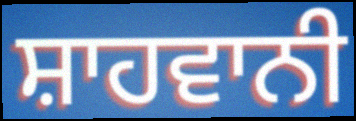
ਸ਼ਾਹਵਾਨੀ